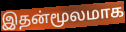
இதன்மூலமாக